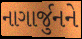
નાગાર્જુનને